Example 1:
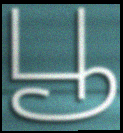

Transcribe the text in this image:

பூ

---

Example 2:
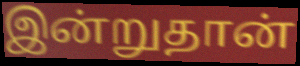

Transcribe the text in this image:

இன்றுதான்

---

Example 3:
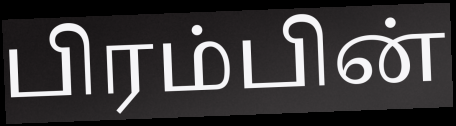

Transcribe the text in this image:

பிரம்பின்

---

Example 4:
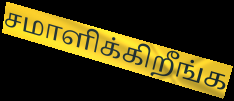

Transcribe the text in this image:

சமாளிக்கிறீங்க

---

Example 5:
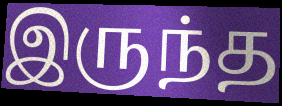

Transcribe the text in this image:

இருந்த